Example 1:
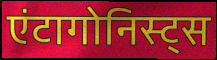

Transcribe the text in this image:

एंटागोनिस्ट्स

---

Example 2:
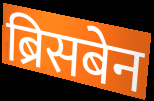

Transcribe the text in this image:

ब्रिसबेन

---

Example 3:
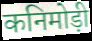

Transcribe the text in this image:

कनिमोड़ी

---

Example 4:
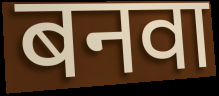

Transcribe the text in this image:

बनवा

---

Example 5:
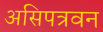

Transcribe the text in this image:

असिपत्रवन